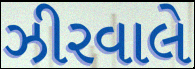
ઝીરવાલે